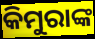
କିମୁରାଙ୍କ